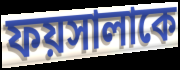
ফয়সালাকে